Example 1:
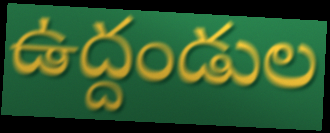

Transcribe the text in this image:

ఉద్దండుల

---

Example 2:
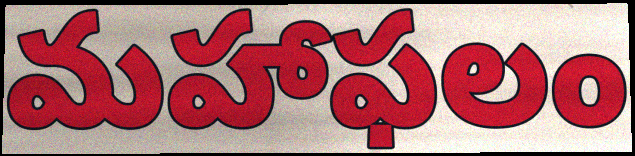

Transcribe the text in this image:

మహాఫలం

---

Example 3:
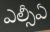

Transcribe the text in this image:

ఎల్సీఏ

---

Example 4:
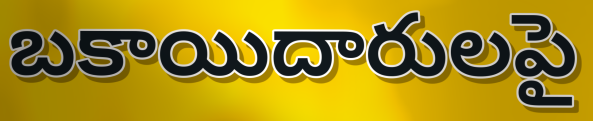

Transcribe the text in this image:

బకాయిదారులపై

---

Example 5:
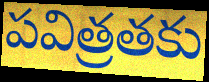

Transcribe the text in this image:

పవిత్రతకు